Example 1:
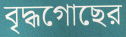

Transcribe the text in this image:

বৃদ্ধগোছের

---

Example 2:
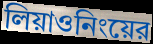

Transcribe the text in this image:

লিয়াওনিংয়ের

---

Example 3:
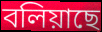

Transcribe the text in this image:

বলিয়াছে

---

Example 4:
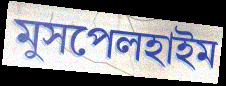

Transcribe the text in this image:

মুসপেলহাইম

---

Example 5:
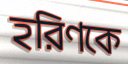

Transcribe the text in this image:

হরিণকে